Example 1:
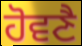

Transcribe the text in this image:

ਹੋਵਣੈ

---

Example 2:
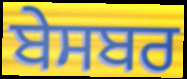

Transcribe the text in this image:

ਬੇਸਬਰ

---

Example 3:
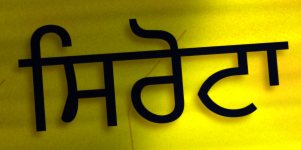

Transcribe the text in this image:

ਸਿਰੋਟਾ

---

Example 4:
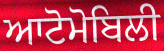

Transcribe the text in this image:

ਆਟੋਮੋਬਿਲੀ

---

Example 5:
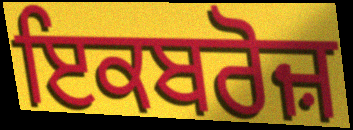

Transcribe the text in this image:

ਇਕਬਰੋਜ਼